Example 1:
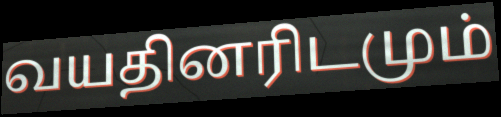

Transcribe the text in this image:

வயதினரிடமும்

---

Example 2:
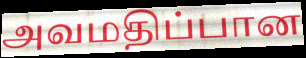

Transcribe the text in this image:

அவமதிப்பான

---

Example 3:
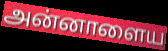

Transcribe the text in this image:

அன்னாளைய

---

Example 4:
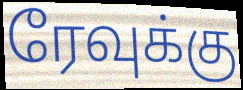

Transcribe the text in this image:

ரேவுக்கு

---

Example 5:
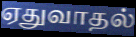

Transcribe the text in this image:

ஏதுவாதல்